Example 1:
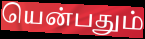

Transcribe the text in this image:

யென்பதும்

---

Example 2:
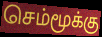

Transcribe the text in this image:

செம்மூக்கு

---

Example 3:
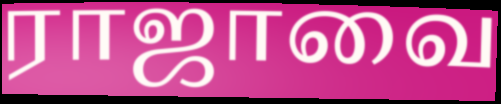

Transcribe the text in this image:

ராஜாவை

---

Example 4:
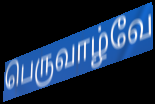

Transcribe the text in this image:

பெருவாழ்வே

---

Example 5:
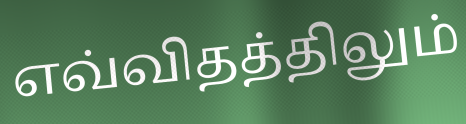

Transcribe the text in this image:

எவ்விதத்திலும்